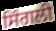
ਸਿੰਗਲੀ